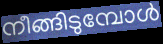
നീങ്ങിടുമ്പോൾ